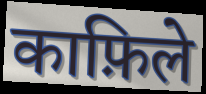
काफ़िले